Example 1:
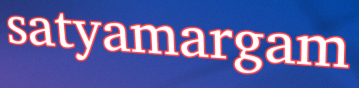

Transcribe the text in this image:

satyamargam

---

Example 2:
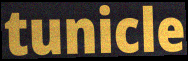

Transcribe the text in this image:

tunicle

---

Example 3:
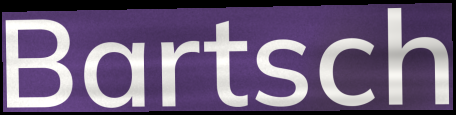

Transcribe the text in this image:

Bartsch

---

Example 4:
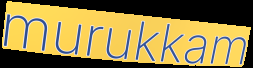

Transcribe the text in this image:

murukkam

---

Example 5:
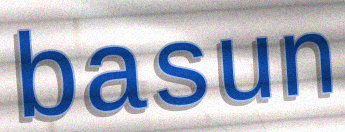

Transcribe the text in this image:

basun